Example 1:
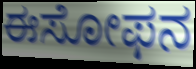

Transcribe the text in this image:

ಈಸೋಫನ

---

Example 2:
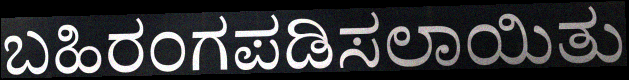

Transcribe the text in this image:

ಬಹಿರಂಗಪಡಿಸಲಾಯಿತು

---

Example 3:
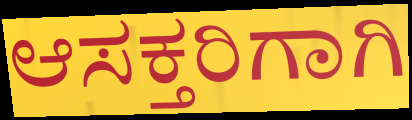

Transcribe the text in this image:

ಆಸಕ್ತರಿಗಾಗಿ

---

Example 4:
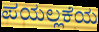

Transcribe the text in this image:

ಪಯಲ್ಲಕೆಯ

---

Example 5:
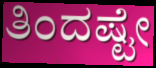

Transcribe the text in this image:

ತಿಂದಷ್ಟೇ